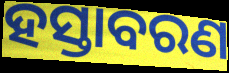
ହସ୍ତାବରଣ